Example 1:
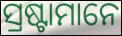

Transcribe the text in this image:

ସ୍ରଷ୍ଟାମାନେ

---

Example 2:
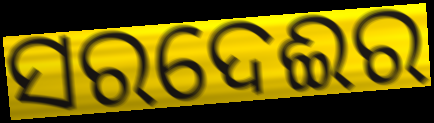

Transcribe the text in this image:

ସରଦେଈର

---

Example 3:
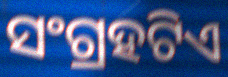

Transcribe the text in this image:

ସଂଗ୍ରହଟିଏ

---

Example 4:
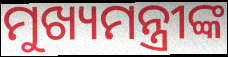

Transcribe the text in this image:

ମୁଖ୍ୟମନ୍ତ୍ରୀଙ୍କ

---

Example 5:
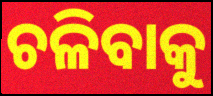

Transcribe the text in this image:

ଚଳିବାକୁ